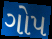
ગોપ